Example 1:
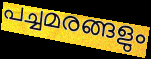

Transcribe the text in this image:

പച്ചമരങ്ങളും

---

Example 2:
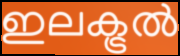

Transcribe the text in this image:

ഇലക്ട്രൽ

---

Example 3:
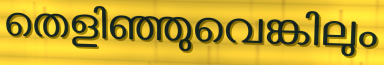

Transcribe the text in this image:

തെളിഞ്ഞുവെങ്കിലും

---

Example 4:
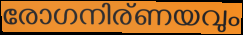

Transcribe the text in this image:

രോഗനിര്ണയവും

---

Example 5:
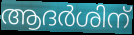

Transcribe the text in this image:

ആദർശിന്